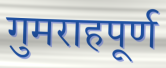
गुमराहपूर्ण